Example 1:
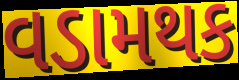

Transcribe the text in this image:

વડામથક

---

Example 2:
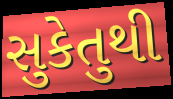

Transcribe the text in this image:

સુકેતુથી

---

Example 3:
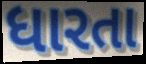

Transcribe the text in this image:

ધારતા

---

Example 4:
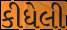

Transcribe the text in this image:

કીધેલી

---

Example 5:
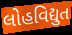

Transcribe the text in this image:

લોહવિદ્યુત